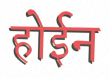
होईन